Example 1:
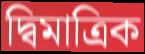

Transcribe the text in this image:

দ্বিমাত্রিক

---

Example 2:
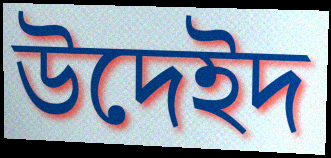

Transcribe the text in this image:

উদেইদ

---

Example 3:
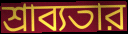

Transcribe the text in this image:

শ্রাব্যতার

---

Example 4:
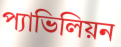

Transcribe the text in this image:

প্যাভিলিয়ন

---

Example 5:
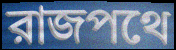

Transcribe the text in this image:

রাজপথে